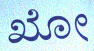
ಖೋ